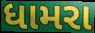
ધામરા